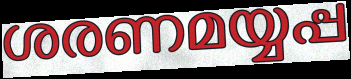
ശരണമയ്യപ്പ